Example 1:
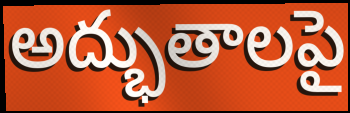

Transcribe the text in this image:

అద్భుతాలపై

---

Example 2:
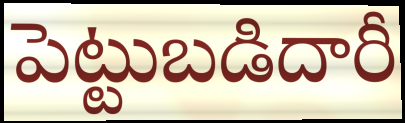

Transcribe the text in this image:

పెట్టుబడిదారీ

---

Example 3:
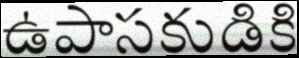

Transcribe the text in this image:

ఉపాసకుడికి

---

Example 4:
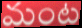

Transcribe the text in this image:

మంట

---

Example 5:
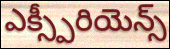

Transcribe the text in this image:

ఎక్స్పీరియెన్స్